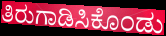
ತಿರುಗಾಡಿಸಿಕೊಂಡು